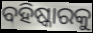
ବହିଷ୍କାରକୁ